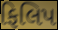
ફિલિપ